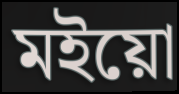
মইয়ো